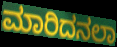
ಮಾರಿದನಲಾ